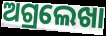
ଅଗ୍ରଲେଖା